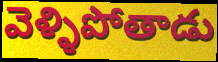
వెళ్ళిపోతాడు